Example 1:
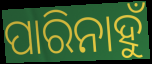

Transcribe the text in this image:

ପାରିନାହୁଁ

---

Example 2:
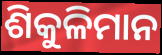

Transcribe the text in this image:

ଶିକୁଳିମାନ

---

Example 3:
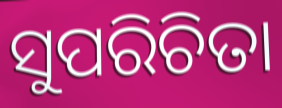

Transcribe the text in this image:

ସୁପରିଚିତା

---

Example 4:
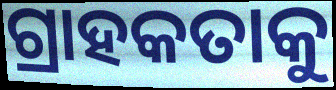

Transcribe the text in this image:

ଗ୍ରାହକତାକୁ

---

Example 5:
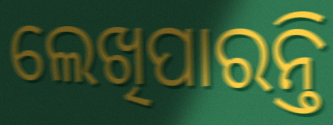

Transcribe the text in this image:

ଲେଖିପାରନ୍ତି